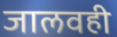
जालवही